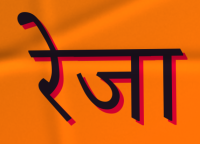
रेजा